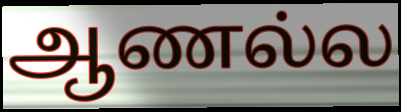
ஆணல்ல